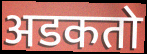
अडकतो